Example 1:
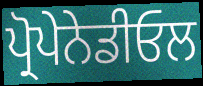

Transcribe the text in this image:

ਪ੍ਰੋਪੇਨੇਡੀਓਲ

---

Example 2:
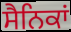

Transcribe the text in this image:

ਸੈਨਿਕਾਂ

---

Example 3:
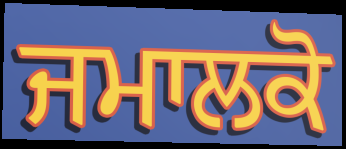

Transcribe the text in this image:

ਜਮਾਲਕੋ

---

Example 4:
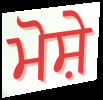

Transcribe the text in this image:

ਮੋਸ਼ੇ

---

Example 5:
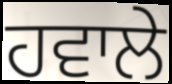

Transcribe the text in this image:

ਹਵਾਲੇ